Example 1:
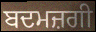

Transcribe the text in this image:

ਬਦਮਜ਼ਗੀ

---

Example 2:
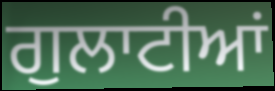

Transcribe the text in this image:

ਗੁਲਾਟੀਆਂ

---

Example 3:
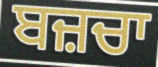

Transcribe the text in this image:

ਬਜ਼ਚਾ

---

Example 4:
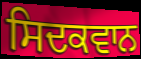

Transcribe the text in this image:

ਸਿਦਕਵਾਨ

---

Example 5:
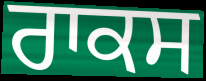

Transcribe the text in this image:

ਰਾਕਸ